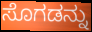
ಸೊಗಡನ್ನು